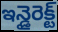
ఇన్డైరెక్ట్